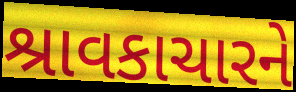
શ્રાવકાચારને